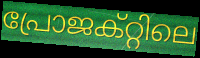
പ്രോജക്റ്റിലെ